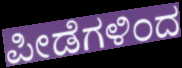
ಪೀಡೆಗಳಿಂದ